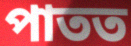
পাতত